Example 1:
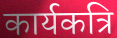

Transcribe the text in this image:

कार्यकत्रि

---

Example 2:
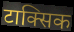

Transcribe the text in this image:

टाक्सिक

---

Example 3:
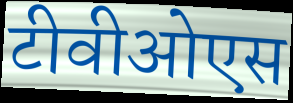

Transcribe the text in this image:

टीवीओएस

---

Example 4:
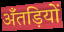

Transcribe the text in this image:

अँतड़ियों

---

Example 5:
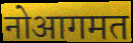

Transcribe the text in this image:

नोआगमत